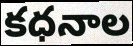
కధనాల